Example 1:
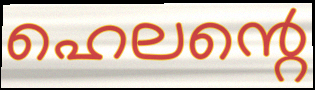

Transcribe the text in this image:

ഹെലന്റെ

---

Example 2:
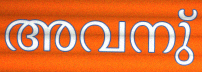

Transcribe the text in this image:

അവനു്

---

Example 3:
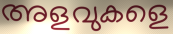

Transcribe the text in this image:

അളവുകളെ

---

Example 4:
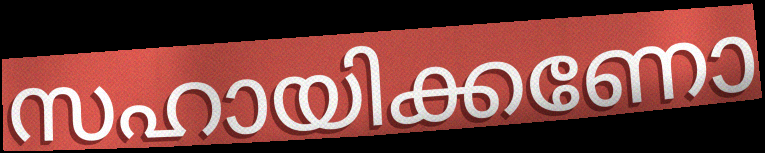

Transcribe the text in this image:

സഹായിക്കണോ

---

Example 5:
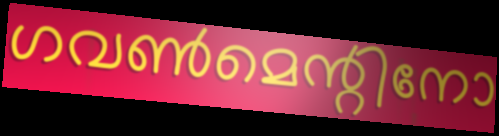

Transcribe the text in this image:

ഗവൺമെന്റിനോ